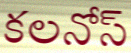
కలనోస్